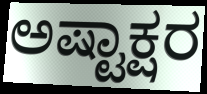
ಅಷ್ಟಾಕ್ಷರ